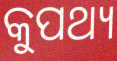
କୁପଥ୍ୟ